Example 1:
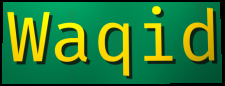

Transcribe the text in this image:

Waqid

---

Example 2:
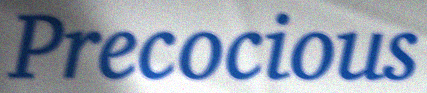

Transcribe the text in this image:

Precocious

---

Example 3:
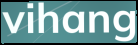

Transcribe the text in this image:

vihang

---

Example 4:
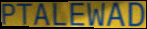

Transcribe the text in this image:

PTALEWAD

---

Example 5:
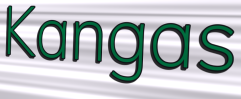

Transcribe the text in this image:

Kangas